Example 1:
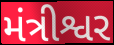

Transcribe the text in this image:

મંત્રીશ્વર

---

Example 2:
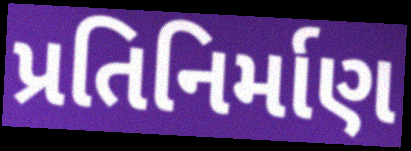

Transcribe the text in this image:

પ્રતિનિર્માણ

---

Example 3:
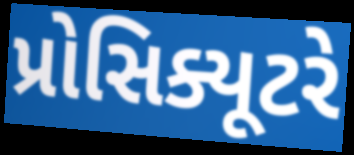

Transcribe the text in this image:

પ્રોસિક્યૂટરે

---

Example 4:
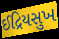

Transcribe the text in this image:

ઈદ્રિયસુખ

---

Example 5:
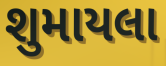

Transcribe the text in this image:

શુમાયલા